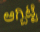
ಆಗ್ಬಿಟ್ಟೆ